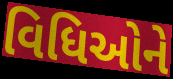
વિધિઓને